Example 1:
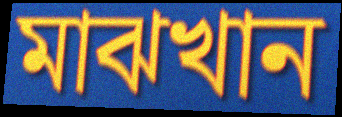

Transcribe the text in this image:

মাঝখান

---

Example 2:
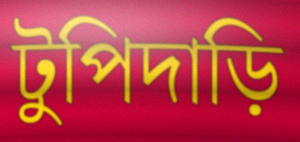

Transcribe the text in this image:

টুপিদাড়ি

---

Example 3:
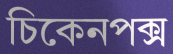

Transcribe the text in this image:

চিকেনপক্স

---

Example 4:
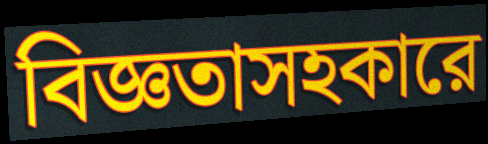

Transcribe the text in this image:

বিজ্ঞতাসহকারে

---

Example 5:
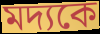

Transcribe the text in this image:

মদ্যকে